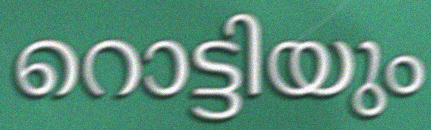
റൊട്ടിയും